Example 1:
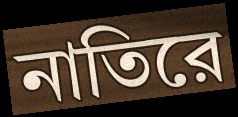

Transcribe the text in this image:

নাতিরে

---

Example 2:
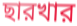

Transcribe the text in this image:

ছারখার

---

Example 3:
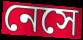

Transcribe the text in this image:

নেসে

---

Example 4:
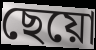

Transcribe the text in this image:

ছেয়ো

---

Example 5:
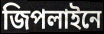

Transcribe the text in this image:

জিপলাইনে